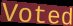
Voted